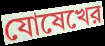
যোষেখের